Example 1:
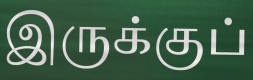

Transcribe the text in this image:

இருக்குப்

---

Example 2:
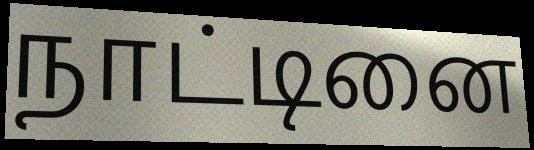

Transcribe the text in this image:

நாட்டினை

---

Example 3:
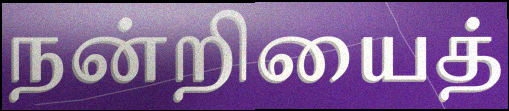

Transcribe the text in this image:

நன்றியைத்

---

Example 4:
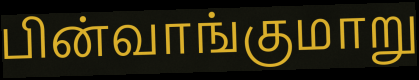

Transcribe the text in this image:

பின்வாங்குமாறு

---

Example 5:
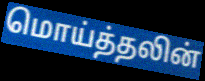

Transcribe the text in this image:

மொய்த்தலின்